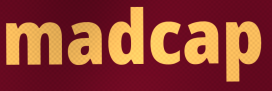
madcap